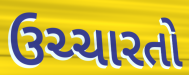
ઉચ્ચારતો